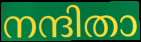
നന്ദിതാ